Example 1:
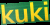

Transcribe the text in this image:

kuki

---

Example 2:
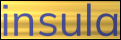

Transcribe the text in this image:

insula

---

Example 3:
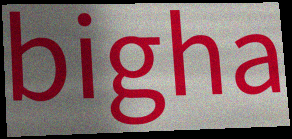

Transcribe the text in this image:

bigha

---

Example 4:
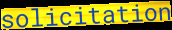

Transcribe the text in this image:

solicitation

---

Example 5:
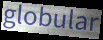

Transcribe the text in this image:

globular